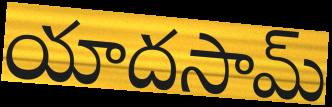
యాదసామ్